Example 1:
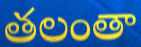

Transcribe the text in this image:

తలంతా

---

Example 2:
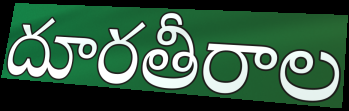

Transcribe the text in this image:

దూరతీరాల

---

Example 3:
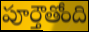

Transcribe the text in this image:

పూర్తౌతోంది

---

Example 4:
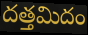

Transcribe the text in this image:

దత్తమిదం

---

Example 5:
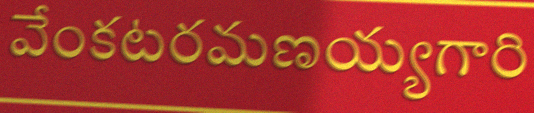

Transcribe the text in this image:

వేంకటరమణయ్యగారి